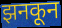
झनकून